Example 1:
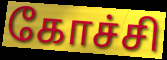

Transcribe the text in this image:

கோச்சி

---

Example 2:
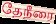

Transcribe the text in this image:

தேநீரை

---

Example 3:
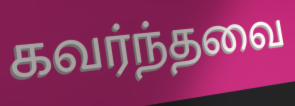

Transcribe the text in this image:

கவர்ந்தவை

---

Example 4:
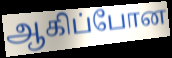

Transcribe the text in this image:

ஆகிப்போன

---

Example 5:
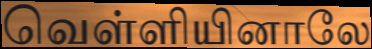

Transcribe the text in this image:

வெள்ளியினாலே